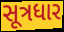
સૂત્રધાર